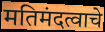
मतिमंदत्वाचे